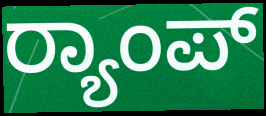
ರ‍್ಯಾಂಪ್